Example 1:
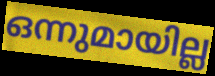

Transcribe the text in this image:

ഒന്നുമായില്ല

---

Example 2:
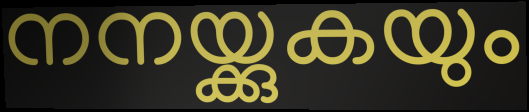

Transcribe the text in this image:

നനയ്ക്കുകയും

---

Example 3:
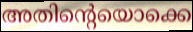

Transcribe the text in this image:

അതിന്റെയൊക്കെ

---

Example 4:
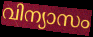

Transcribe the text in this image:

വിന്യാസം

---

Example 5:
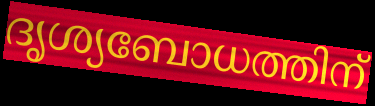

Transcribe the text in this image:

ദൃശ്യബോധത്തിന്